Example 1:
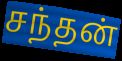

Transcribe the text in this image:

சந்தன்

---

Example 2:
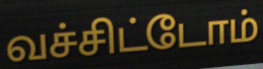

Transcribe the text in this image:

வச்சிட்டோம்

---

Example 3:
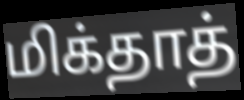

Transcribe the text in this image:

மிக்தாத்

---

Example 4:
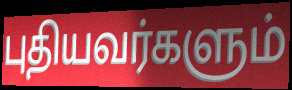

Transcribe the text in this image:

புதியவர்களும்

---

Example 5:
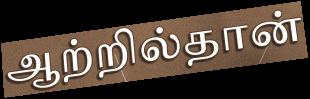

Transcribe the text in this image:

ஆற்றில்தான்